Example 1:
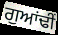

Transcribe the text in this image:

ਗੁਆਂਢੀਂ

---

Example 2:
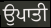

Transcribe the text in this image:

ਉਪਾਤੀ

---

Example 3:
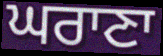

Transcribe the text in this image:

ਘਰਾਣਾ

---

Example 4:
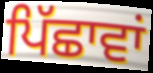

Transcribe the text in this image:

ਪਿੱਛਾਵਾਂ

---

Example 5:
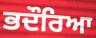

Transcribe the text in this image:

ਭਦੌਰਿਆ